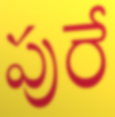
పురే